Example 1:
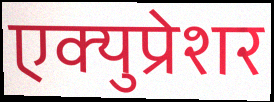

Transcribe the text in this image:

एक्युप्रेशर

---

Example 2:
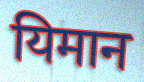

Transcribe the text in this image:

यिमान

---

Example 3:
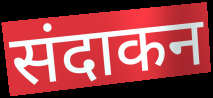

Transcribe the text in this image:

संदाकन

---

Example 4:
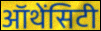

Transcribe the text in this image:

ऑथेंसिटी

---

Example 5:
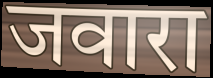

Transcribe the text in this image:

जवारा